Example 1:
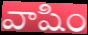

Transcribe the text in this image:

వాషిం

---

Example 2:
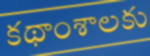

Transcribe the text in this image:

కథాంశాలకు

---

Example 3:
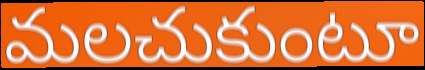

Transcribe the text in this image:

మలచుకుంటూ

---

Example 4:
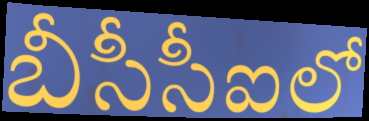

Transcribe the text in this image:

బీసీసీఐలో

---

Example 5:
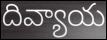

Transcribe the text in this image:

దివ్యాయ